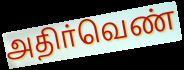
அதிர்வெண்